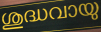
ശുദ്ധവായു